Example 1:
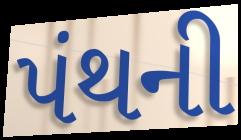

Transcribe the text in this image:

પંથની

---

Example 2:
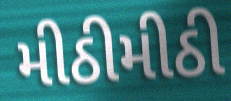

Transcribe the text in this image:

મીઠીમીઠી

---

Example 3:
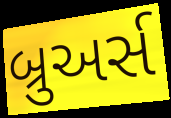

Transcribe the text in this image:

બ્રુઅર્સ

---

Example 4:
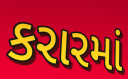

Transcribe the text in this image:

કરારમાં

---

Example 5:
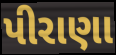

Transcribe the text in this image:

પીરાણા